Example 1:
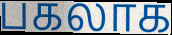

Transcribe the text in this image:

பகலாக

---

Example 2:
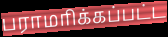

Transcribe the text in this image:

பராமரிக்கப்பட்ட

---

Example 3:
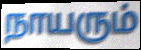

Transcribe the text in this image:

நாயரும்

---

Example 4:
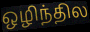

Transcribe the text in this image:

ஒழிந்தில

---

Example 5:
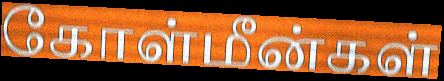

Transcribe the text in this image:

கோள்மீன்கள்